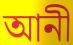
আনী